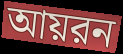
আয়রন